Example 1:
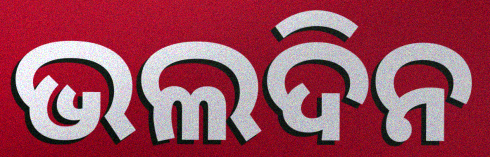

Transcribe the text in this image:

ଭଲଦିନ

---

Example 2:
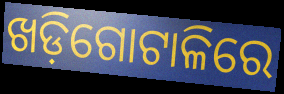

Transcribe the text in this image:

ଖଡ଼ିଗୋଟାଳିରେ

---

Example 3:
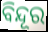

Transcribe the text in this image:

ବିନ୍ଦୂର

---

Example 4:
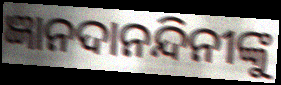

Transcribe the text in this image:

ଜ୍ଞାନଦାନନ୍ଦିନୀଙ୍କୁ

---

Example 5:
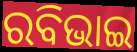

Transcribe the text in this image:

ରବିଭାଇ